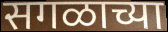
सगळाच्या